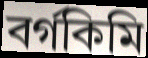
বর্গকিমি